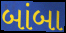
બાંબા